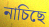
নাচিছে